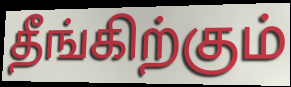
தீங்கிற்கும்